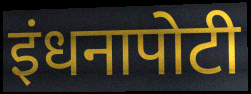
इंधनापोटी